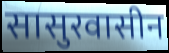
सासुरवासीन